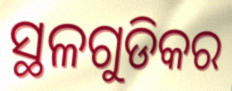
ସ୍ଥଳଗୁଡିକର